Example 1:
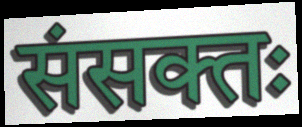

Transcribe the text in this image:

संसक्तः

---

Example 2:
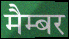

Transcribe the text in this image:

मैम्बर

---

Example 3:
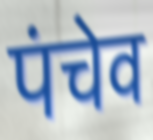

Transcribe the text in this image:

पंचेव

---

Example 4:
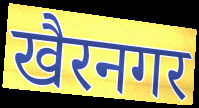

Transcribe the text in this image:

खैरनगर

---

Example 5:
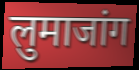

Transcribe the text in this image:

लुमाजांग